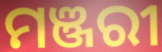
ମଞ୍ଜରୀ